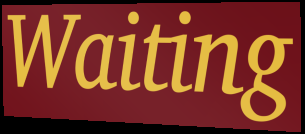
Waiting